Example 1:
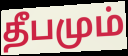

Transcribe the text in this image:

தீபமும்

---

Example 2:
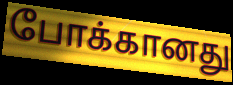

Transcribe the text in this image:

போக்கானது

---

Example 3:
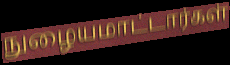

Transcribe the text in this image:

நுழையமாட்டார்கள்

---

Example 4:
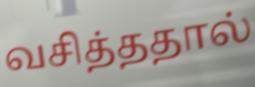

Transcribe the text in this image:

வசித்ததால்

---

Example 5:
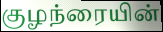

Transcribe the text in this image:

குழந்ரையின்